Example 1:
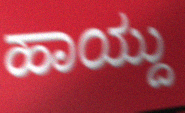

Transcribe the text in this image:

ಹಾಯ್ದು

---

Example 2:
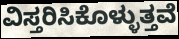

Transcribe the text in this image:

ವಿಸ್ತರಿಸಿಕೊಳ್ಳುತ್ತವೆ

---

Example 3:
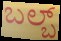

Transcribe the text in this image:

ಬಲ್ಬ್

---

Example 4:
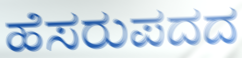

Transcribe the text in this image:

ಹೆಸರುಪದದ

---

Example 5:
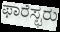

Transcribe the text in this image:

ಫಾರೆಸ್ಟರು